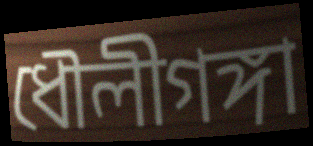
ধৌলীগঙ্গা